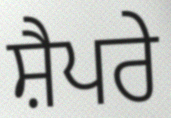
ਸ਼ੈਪਰੇ